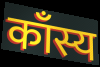
काँस्य